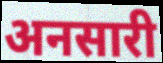
अनसारी